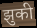
झुकी